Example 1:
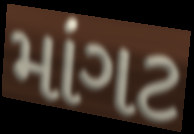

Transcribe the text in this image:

માંગટ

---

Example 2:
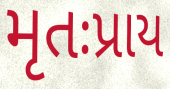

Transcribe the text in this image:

મૃતઃપ્રાય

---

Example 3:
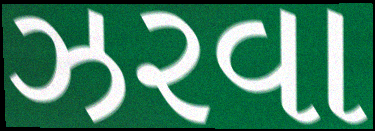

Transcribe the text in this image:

ઝરવા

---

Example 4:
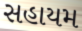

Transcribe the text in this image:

સહાયમ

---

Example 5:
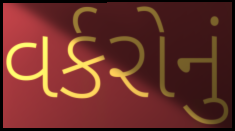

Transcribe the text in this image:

વર્કરોનું